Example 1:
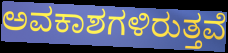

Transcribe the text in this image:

ಅವಕಾಶಗಳಿರುತ್ತವೆ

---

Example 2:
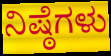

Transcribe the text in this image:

ನಿಷ್ಠೆಗಳು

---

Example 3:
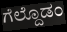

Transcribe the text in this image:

ಗೆಲ್ದೊಡಂ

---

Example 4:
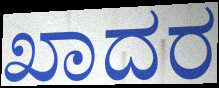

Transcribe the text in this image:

ಖಾದರ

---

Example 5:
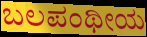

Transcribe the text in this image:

ಬಲಪಂಥೀಯ